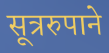
सूत्ररुपाने